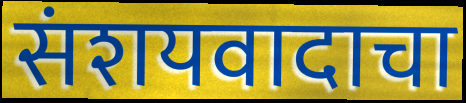
संशयवादाचा